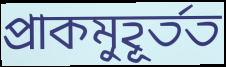
প্ৰাকমুহূৰ্তত